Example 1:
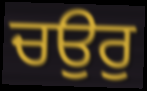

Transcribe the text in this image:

ਚਉਰੁ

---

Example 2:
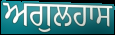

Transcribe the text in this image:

ਅਗੁਲਹਾਸ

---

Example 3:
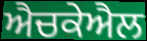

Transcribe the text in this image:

ਐਚਕੇਐਲ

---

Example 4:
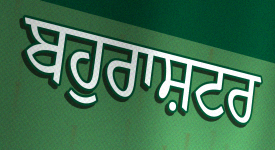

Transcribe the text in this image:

ਬਹੁਰਾਸ਼ਟਰ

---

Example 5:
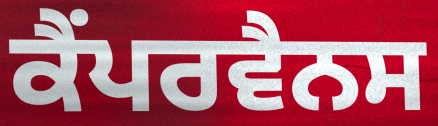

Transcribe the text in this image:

ਕੈਂਪਰਵੈਨਸ